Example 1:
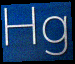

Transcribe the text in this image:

Hg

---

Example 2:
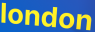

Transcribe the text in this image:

london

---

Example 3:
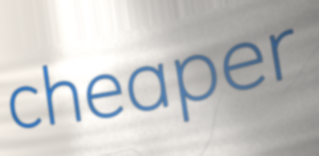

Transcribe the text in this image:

cheaper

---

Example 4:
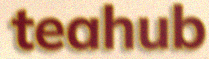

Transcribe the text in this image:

teahub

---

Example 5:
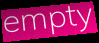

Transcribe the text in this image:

empty